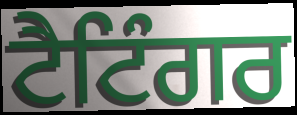
ਟੈਟਿੰਗਰ